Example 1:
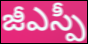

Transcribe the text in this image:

జీఎస్పీ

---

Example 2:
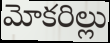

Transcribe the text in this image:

మోకరిల్లు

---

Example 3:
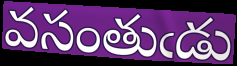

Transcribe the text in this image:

వసంతుఁడు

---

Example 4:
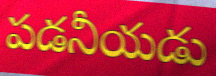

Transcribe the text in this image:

పడనీయడు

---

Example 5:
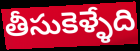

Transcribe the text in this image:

తీసుకెళ్ళేది